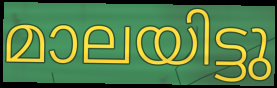
മാലയിട്ടു